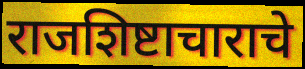
राजशिष्टाचाराचे